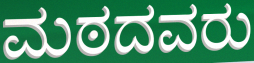
ಮಠದವರು